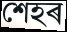
শেহৰ